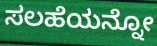
ಸಲಹೆಯನ್ನೋ